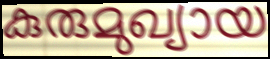
കുരുമുഖ്യായ